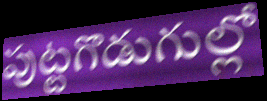
పుట్టగొడుగుల్లో